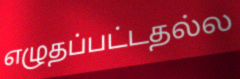
எழுதப்பட்டதல்ல